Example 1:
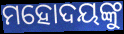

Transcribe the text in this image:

ମହୋଦୟଙ୍କୁ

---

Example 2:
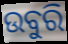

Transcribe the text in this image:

ଉବୁରି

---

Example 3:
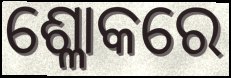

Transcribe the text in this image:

ଶ୍ଳୋକରେ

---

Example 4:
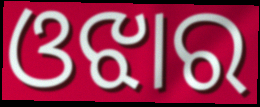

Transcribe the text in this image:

ଓଝାର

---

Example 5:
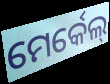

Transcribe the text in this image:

ମେର୍କେଲ୍